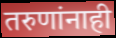
तरुणांनाही